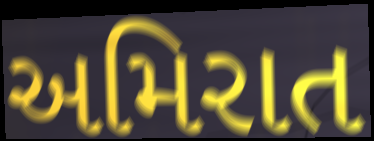
અમિરાત